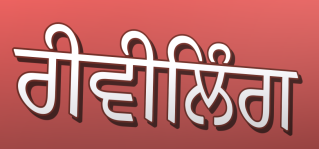
ਰੀਵੀਲਿੰਗ